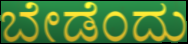
ಬೇಡೆಂದು